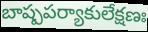
బాష్పపర్యాకులేక్షణః